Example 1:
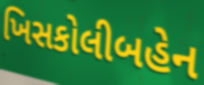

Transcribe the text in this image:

ખિસકોલીબહેન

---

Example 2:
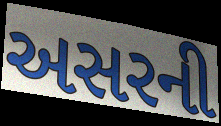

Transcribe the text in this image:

અસરની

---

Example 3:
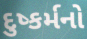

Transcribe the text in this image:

દુષ્કર્મનો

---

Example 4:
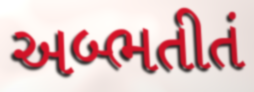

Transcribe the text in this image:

અબ્ભતીતં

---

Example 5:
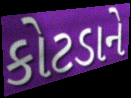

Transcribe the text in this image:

કોટડાને